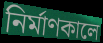
নির্মাণকালে